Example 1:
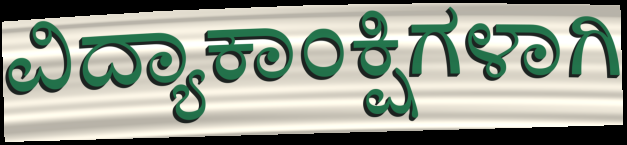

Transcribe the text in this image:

ವಿದ್ಯಾಕಾಂಕ್ಷಿಗಳಾಗಿ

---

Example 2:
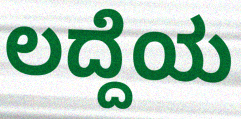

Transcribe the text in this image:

ಲದ್ದೆಯ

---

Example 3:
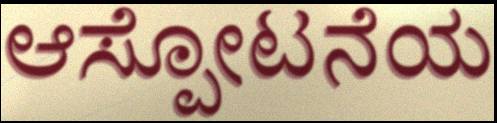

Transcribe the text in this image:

ಆಸ್ಪೋಟನೆಯ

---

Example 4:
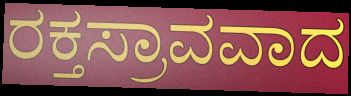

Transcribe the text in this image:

ರಕ್ತಸ್ರಾವವಾದ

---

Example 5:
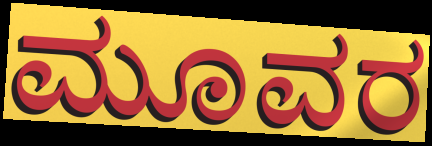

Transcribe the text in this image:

ಮೂವರ